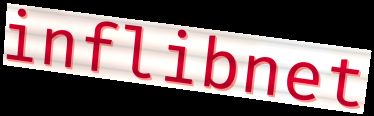
inflibnet